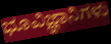
ಭೂವಿಜ್ಞಾನಿಗಳು